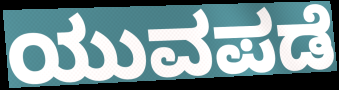
ಯುವಪಡೆ